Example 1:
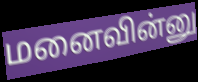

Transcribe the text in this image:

மனைவின்னு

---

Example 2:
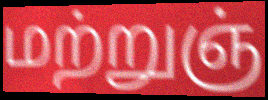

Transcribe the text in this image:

மற்றுஞ்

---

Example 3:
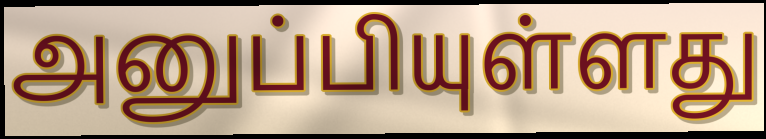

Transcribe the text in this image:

அனுப்பியுள்ளது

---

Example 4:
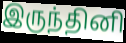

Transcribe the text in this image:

இருந்தினி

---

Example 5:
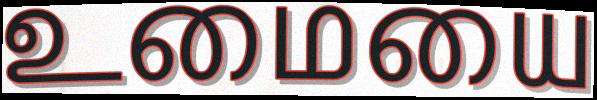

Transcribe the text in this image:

உமையை